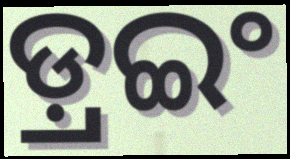
ଡ଼୍ରଇଂ